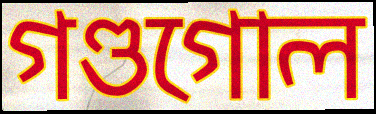
গণ্ডগোল